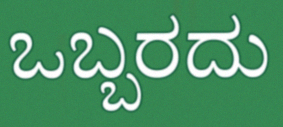
ಒಬ್ಬರದು